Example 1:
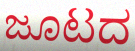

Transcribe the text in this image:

ಜೂಟದ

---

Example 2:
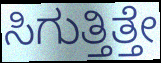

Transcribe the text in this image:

ಸಿಗುತ್ತಿತ್ತೇ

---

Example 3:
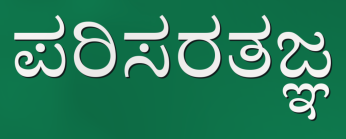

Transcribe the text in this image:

ಪರಿಸರತಜ್ಞ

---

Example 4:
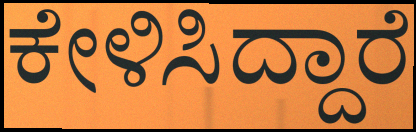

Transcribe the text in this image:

ಕೇಳಿಸಿದ್ದಾರೆ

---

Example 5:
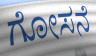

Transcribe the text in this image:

ಗೋಸನೆ